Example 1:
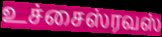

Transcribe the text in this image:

உச்சைஸ்ரவஸ்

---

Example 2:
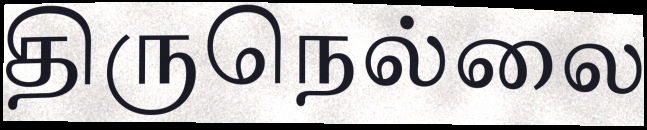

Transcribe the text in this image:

திருநெல்லை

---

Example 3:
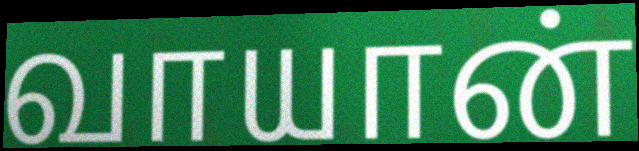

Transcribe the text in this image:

வாயான்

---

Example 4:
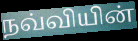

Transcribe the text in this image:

நவ்வியின்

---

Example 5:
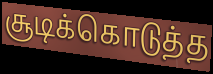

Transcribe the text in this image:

சூடிக்கொடுத்த